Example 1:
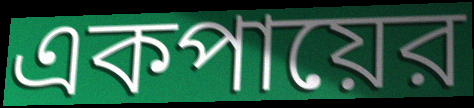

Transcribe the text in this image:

একপায়ের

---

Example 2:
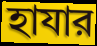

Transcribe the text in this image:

হাযার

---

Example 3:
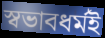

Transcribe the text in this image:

স্বভাবধর্মই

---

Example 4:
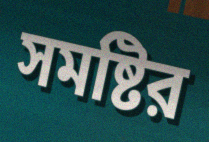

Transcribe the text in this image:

সমষ্টির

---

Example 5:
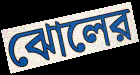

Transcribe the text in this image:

ঝোলের